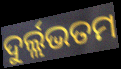
ଦୁର୍ଲ୍ଲଭତମ